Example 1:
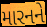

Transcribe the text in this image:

મારનને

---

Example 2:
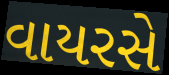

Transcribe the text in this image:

વાયરસે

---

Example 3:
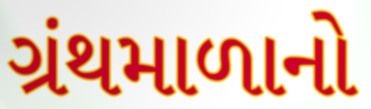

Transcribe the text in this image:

ગ્રંથમાળાનો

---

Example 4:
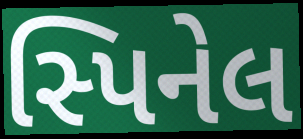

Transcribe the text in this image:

સ્પિનેલ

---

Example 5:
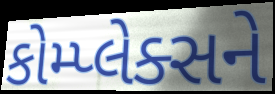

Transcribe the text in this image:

કોમ્પ્લેક્સને